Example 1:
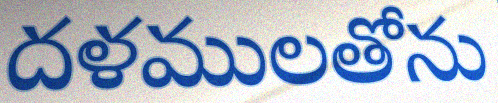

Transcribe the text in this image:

దళములతోను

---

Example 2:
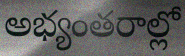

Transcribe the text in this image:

అభ్యంతరాల్లో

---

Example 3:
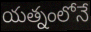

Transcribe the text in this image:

యత్నంలోనే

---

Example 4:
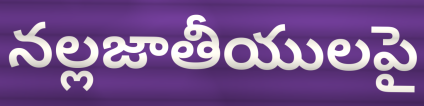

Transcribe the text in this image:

నల్లజాతీయులపై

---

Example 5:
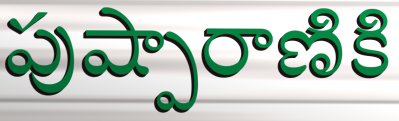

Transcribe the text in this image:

పుష్పారాణికి